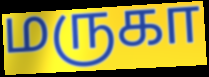
மருகா